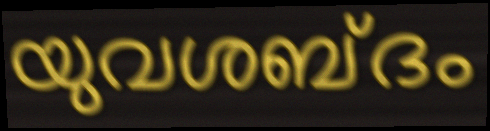
യുവശബ്ദം